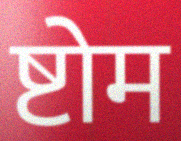
ष्टोम